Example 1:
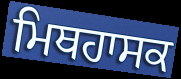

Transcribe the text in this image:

ਮਿਥਹਾਸਕ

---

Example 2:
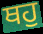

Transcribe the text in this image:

ਥਹੁ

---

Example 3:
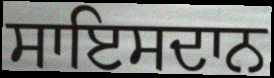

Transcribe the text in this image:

ਸਾਇਸਦਾਨ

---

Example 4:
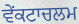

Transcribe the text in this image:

ਵੇਂਕਟਾਚਲਮ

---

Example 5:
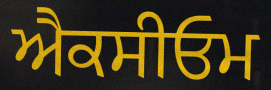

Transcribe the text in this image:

ਐਕਸੀਓਮ